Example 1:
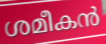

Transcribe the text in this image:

ശമീകൻ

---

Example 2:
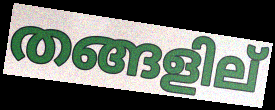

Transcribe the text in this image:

തങ്ങളില്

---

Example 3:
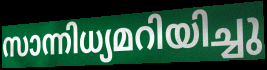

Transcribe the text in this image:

സാന്നിധ്യമറിയിച്ചു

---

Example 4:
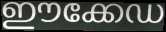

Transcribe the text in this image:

ഈക്കേഡ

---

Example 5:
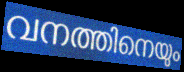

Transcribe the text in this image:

വനത്തിനെയും